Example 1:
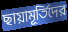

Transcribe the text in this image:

ছায়ামূর্তিদের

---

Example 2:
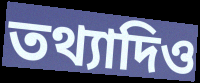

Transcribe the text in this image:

তথ্যাদিও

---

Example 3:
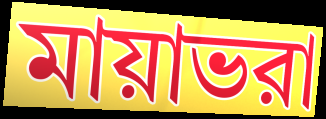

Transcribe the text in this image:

মায়াভরা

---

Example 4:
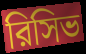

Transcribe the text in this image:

রিসিভ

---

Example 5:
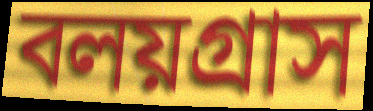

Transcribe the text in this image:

বলয়গ্রাস